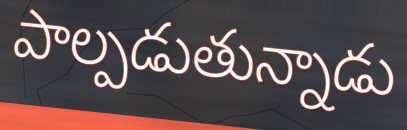
పాల్పడుతున్నాడు